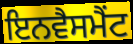
ਇਨਵੈਸਮੈਂਟ